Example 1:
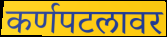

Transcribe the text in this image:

कर्णपटलावर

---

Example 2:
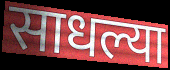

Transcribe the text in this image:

साधल्या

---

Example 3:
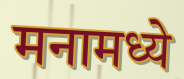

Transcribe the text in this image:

मनामध्ये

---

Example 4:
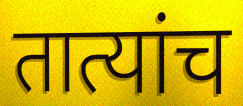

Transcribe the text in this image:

तात्यांच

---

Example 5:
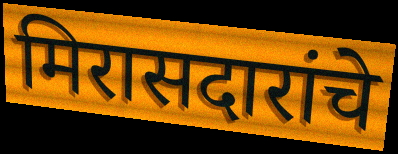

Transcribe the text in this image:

मिरासदारांचे